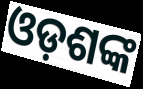
ଓଡ଼ଶଙ୍କ